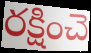
రక్షించె